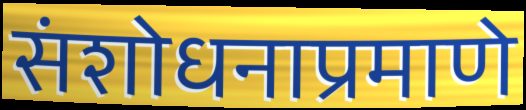
संशोधनाप्रमाणे